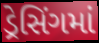
ડ્રેસિંગમાં